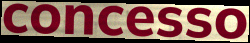
concesso